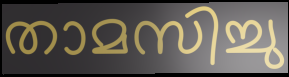
താമസിച്ചു